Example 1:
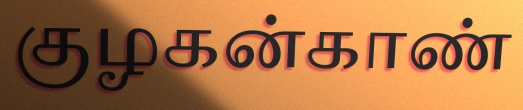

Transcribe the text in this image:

குழகன்காண்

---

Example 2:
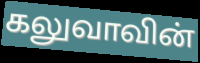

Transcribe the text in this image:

கலுவாவின்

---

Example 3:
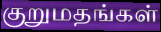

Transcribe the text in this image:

குறுமதங்கள்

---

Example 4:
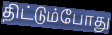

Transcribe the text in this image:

திட்டும்போது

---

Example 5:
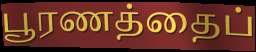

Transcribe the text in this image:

பூரணத்தைப்